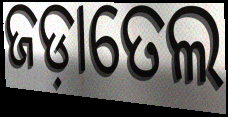
ଜଡ଼ାତେଲ